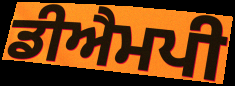
ਡੀਐਮਪੀ